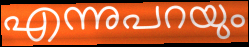
എന്നുപറയും